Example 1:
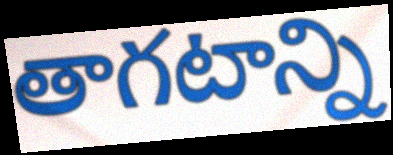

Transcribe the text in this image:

తాగటాన్ని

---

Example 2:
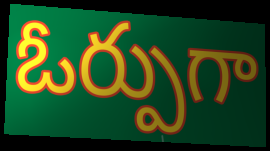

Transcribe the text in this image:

ఓర్పుగా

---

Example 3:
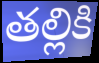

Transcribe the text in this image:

తల్లికి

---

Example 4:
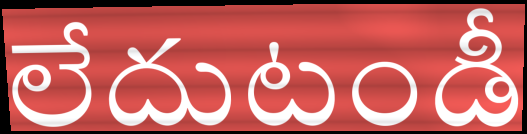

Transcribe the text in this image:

లేదుటండీ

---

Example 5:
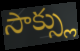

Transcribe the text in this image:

సాక్స్లు